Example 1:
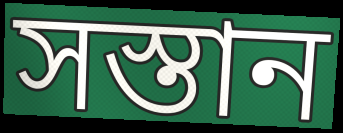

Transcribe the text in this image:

সস্তান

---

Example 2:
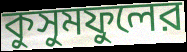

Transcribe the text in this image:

কুসুমফুলের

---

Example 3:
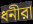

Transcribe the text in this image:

ধনীরা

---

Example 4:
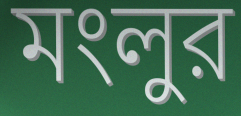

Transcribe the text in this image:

মংলুর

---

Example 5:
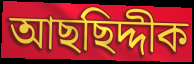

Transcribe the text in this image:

আছছিদ্দীক